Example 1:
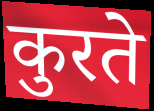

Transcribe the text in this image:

कुरते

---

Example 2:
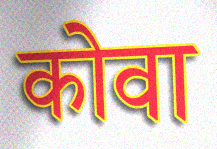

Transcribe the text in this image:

कोवा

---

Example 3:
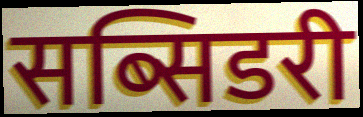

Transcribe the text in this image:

सब्सिडरी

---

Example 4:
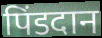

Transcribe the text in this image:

पिंडदान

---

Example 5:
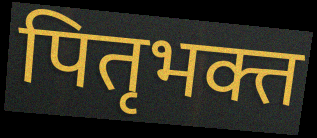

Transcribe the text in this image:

पितृभक्त